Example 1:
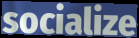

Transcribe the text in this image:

socialize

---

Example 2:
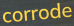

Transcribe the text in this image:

corrode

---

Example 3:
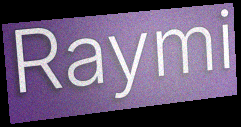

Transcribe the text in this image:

Raymi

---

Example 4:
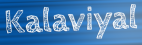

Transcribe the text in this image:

Kalaviyal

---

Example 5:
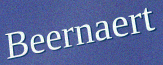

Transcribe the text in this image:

Beernaert